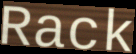
Rack